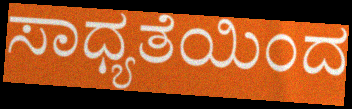
ಸಾಧ್ಯತೆಯಿಂದ